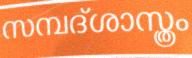
സമ്പദ്ശാസ്ത്രം